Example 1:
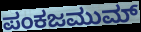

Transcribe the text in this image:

ಪಂಕಜಮುಮ್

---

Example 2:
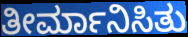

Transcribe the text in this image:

ತೀರ್ಮಾನಿಸಿತು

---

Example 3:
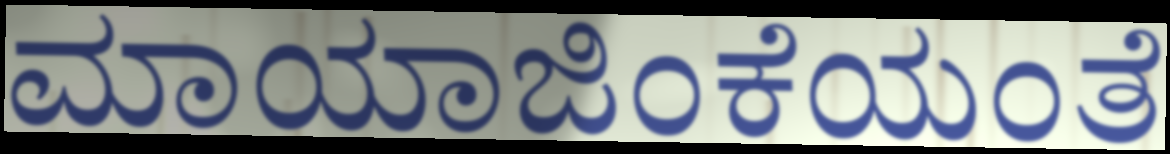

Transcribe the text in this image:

ಮಾಯಾಜಿಂಕೆಯಂತೆ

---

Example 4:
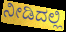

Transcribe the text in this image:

ನೀಡಿದಲ್ಲಿ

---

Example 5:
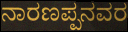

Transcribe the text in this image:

ನಾರಣಪ್ಪನವರ